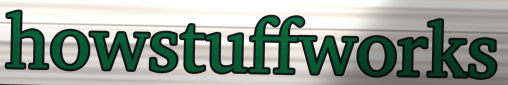
howstuffworks